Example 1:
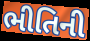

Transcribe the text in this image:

ભીતિની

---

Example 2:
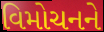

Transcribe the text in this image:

વિમોચનને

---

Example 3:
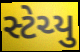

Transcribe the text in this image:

સ્ટેચ્યુ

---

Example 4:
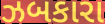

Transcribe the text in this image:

ઝબકારા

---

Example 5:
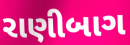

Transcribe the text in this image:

રાણીબાગ